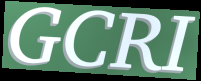
GCRI